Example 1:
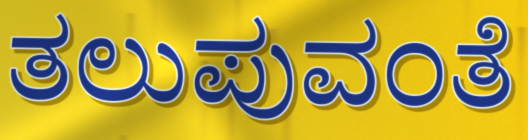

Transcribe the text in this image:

ತಲುಪುವಂತೆ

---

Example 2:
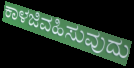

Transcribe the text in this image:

ಕಾಳಜಿವಹಿಸುವುದು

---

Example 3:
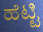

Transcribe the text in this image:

ಹೆಟ್ಟಿ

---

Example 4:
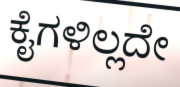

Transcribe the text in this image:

ಕೈಗಳಿಲ್ಲದೇ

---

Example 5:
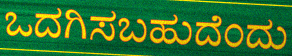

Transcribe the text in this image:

ಒದಗಿಸಬಹುದೆಂದು